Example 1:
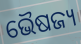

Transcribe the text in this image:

ଭୈଷଜ୍ୟ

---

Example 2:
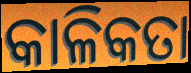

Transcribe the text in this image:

କାଳିକତା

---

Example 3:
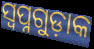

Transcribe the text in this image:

ସ୍ୱପ୍ନଗୁଡ଼ାକ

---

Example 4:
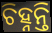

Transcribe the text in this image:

ଚିହ୍ନନ୍ତି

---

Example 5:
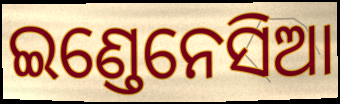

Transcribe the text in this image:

ଇଣ୍ଡେନେସିଆ